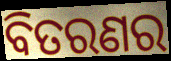
ବିତରଣର